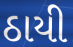
ઠાયી